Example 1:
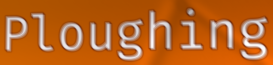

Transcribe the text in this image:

Ploughing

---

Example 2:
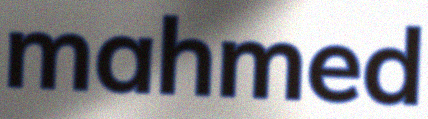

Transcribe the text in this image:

mahmed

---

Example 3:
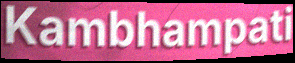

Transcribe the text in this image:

Kambhampati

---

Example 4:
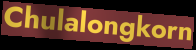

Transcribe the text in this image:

Chulalongkorn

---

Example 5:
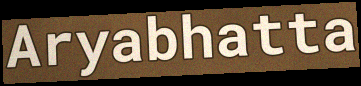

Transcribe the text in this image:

Aryabhatta